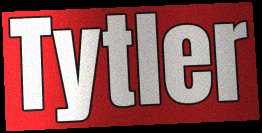
Tytler